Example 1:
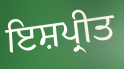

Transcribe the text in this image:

ਇਸ਼ਪ੍ਰੀਤ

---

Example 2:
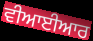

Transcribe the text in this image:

ਵੀਆਈਆਰ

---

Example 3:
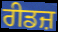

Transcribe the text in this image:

ਰੀਡਜ਼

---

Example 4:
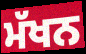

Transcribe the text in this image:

ਮੱਖਨ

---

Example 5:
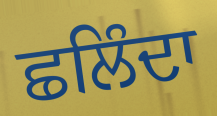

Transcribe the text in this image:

ਛਲਿੰਦਾ